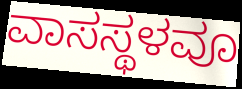
ವಾಸಸ್ಥಳವೂ